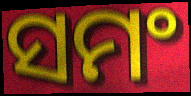
ସମଂ